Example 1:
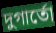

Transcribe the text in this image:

দুগার্তো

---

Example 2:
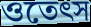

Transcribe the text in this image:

ওতেৎস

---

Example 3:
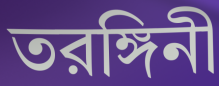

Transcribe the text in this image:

তরঙ্গিনী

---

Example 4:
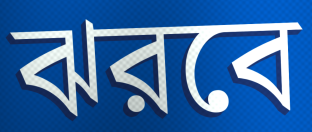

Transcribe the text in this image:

ঝরবে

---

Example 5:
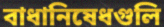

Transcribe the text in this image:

বাধানিষেধগুলি